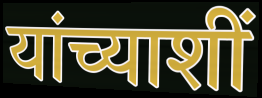
यांच्याशीं